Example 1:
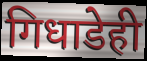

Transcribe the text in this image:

गिधाडेही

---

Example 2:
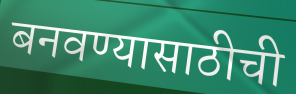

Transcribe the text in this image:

बनवण्यासाठीची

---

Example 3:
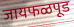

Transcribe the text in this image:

जायफळपूड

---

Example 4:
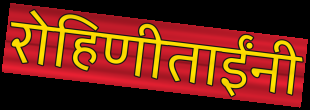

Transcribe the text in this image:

रोहिणीताईंनी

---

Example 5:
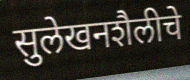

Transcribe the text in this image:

सुलेखनशैलीचे